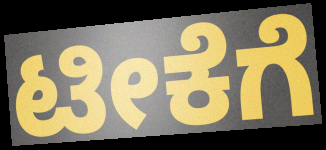
ಟೀಕೆಗೆ